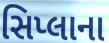
સિપ્લાના